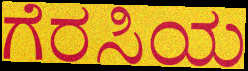
ಗೆರಸಿಯ